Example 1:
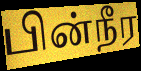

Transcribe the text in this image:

பின்நீர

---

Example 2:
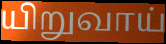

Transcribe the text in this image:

யிறுவாய்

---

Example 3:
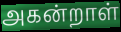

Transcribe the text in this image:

அகன்றாள்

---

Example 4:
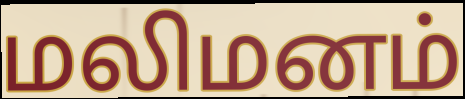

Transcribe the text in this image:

மலிமனம்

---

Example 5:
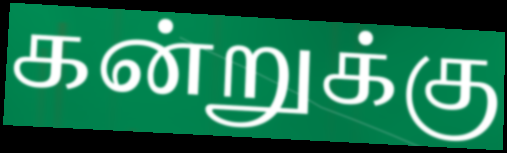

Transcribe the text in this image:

கன்றுக்கு